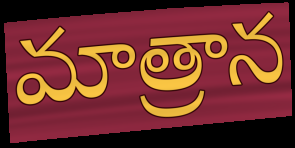
మాత్రాన